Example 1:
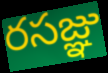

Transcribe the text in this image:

రసజ్ఞు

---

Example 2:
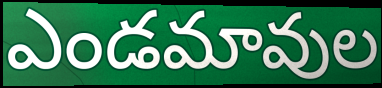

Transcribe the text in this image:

ఎండమావుల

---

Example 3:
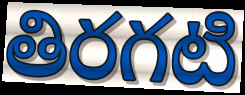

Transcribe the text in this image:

తిరగటి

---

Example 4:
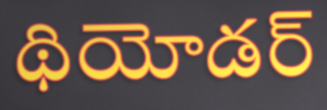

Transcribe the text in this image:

థియోడర్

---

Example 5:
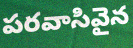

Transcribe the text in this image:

పరవాసివైన